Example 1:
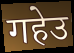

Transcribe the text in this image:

गहेउ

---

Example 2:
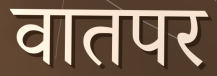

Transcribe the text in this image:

वातपर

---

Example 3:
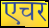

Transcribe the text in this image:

एचर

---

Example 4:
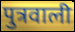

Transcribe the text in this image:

पुत्रवाली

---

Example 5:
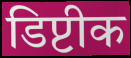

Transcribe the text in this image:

डिप्टीक